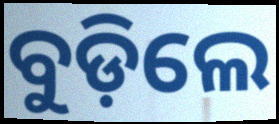
ବୁଡ଼ିଲେ